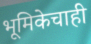
भूमिकेचाही